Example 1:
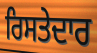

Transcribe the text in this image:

ਰਿਸਤੇਦਾਰ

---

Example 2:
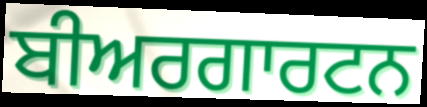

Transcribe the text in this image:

ਬੀਅਰਗਾਰਟਨ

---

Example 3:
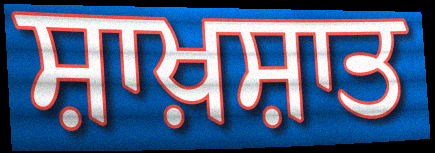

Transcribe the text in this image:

ਸ਼ਾਖ਼ਸ਼ਾਤ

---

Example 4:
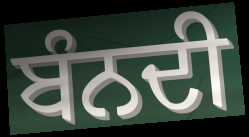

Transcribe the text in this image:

ਬੰਨਦੀ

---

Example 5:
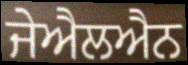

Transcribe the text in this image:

ਜੇਐਲਐਨ